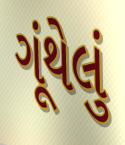
ગૂંથેલું